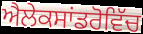
ਐਲੇਕਸਾਂਡਰੋਵਿੱਚ